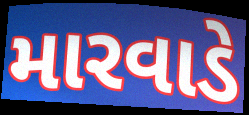
મારવાડે